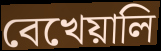
বেখেয়ালি